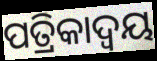
ପତ୍ରିକାଦ୍ୱୟ